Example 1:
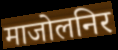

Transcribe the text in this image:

माजोलनिर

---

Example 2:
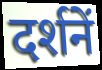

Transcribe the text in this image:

दर्शनें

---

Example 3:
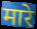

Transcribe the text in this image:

मारे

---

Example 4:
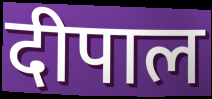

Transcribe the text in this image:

दीपाल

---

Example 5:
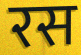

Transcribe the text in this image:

रस